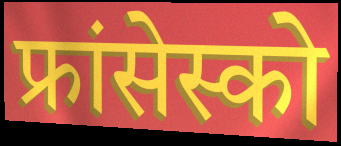
फ्रांसेस्को